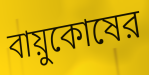
বায়ুকোষের